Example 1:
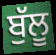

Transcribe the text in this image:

ਬੁੱਲੂ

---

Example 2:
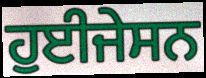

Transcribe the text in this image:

ਹੁਈਜੇਸਨ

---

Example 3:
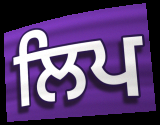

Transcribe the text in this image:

ਲਿਪ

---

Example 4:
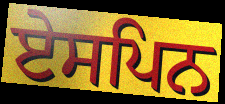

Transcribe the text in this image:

ਏਸਪਿਨ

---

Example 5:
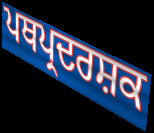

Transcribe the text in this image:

ਪਥਪ੍ਰਦਰਸ਼ਕ